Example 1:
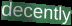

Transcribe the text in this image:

decently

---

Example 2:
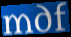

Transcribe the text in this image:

mdf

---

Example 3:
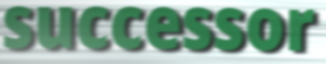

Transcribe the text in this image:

successor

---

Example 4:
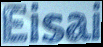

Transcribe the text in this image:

Eisai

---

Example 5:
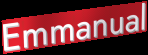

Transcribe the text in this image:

Emmanual